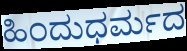
ಹಿಂದುಧರ್ಮದ